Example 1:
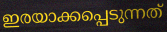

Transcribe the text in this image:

ഇരയാക്കപ്പെടുന്നത്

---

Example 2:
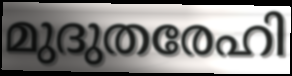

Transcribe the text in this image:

മുദുതരേഹി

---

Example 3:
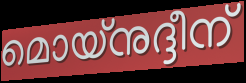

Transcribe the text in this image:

മൊയ്നുദ്ദീന്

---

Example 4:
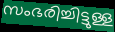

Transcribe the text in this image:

സംഭരിച്ചിട്ടുള്ള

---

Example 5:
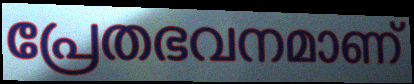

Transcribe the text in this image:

പ്രേതഭവനമാണ്